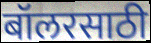
बॉलरसाठी